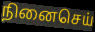
நினைசெய்